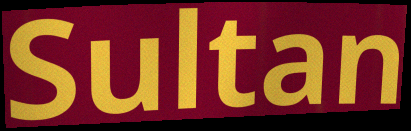
Sultan